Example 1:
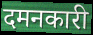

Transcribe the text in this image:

दमनकारी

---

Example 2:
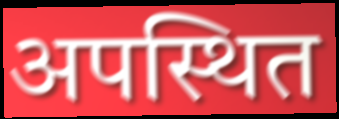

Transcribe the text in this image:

अपस्थित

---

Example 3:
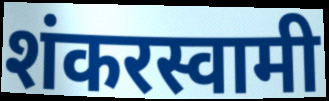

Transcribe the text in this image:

शंकरस्वामी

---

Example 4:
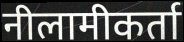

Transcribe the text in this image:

नीलामीकर्ता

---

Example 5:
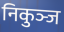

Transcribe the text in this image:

निकुञ्ज